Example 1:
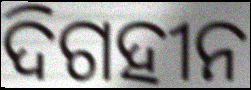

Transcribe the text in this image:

ଦିଗହୀନ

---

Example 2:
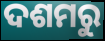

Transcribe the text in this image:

ଦଶମରୁ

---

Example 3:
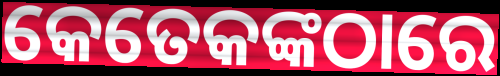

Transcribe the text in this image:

କେତେକଙ୍କଠାରେ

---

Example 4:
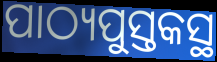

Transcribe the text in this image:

ପାଠ୍ୟପୁସ୍ତକସ୍ଥ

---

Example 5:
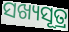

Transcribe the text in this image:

ସଖ୍ୟସୂତ୍ର